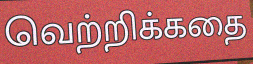
வெற்றிக்கதை